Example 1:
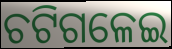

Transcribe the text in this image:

ଚଟିଗଳେଇ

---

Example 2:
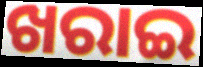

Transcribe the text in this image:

ଖରାଇ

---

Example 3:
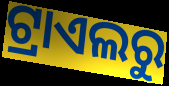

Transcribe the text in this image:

ଟ୍ରାଏଲରୁ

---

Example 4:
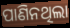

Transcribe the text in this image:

ପାଣିନଥିଲା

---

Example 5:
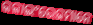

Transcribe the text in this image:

କଳାଇଂରେଜମାନେ